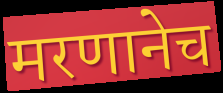
मरणानेच